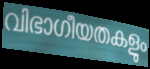
വിഭാഗീയതകളും